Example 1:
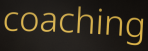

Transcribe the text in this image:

coaching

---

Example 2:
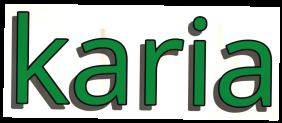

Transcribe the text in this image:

karia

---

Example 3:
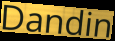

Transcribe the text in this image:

Dandin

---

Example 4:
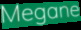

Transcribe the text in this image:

Megane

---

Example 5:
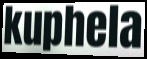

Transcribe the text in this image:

kuphela